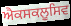
ਐਕਸਕਲੂਸਿਵ